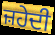
ਜ਼ਹੇਦੀ